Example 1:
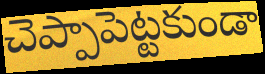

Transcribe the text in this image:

చెప్పాపెట్టకుండా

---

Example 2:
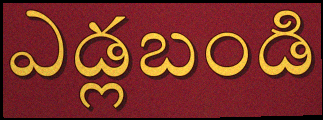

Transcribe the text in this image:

ఎడ్లబండి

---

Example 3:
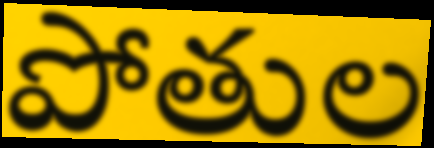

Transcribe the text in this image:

పోతుల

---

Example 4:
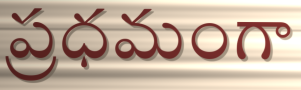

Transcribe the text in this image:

ప్రధమంగా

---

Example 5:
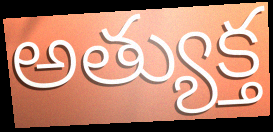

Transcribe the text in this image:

అత్యుక్త